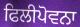
ਫਿਲੀਪੋਵਨਾ